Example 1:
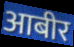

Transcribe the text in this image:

आबीर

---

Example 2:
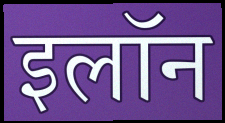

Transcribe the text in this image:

इलॉन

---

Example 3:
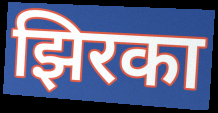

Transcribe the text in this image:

झिरका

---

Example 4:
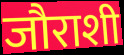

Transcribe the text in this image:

जौराशी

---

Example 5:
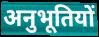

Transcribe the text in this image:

अनुभूतियों